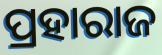
ପ୍ରହାରାଜ